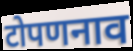
टोपणनाव